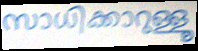
സാധിക്കാറുള്ളൂ